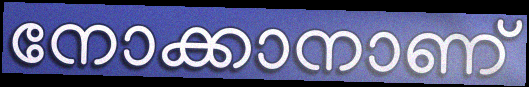
നോക്കാനാണ്